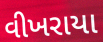
વીખરાયા